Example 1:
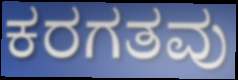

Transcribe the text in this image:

ಕರಗತವು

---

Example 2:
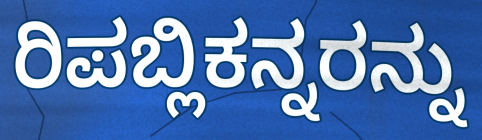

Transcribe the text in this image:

ರಿಪಬ್ಲಿಕನ್ನರನ್ನು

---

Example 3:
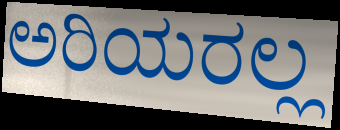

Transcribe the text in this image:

ಅರಿಯರಲ್ಲ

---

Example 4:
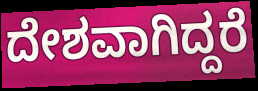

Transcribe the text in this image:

ದೇಶವಾಗಿದ್ದರೆ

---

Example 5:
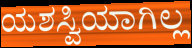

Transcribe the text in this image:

ಯಶಸ್ವಿಯಾಗಿಲ್ಲ